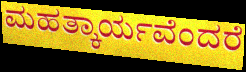
ಮಹತ್ಕಾರ್ಯವೆಂದರೆ